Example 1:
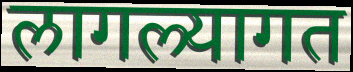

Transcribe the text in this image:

लागल्यागत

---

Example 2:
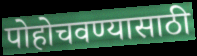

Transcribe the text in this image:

पोहोचवण्यासाठी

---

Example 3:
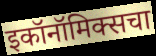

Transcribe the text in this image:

इकॉनॉमिक्सचा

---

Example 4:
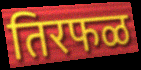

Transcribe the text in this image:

तिरफळ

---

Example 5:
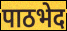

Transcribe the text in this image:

पाठभेद